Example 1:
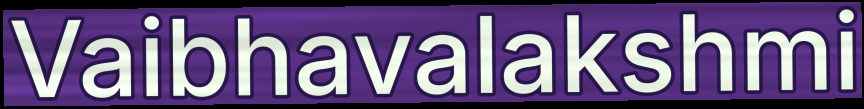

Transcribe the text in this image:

Vaibhavalakshmi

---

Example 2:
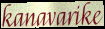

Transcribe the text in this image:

kanavarike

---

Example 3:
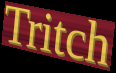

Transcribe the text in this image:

Tritch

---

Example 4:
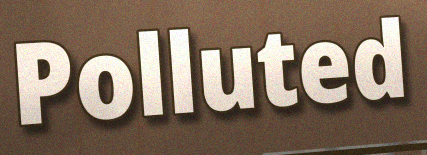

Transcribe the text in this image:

Polluted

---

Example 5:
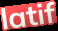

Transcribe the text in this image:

latif